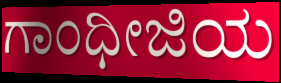
ಗಾಂಧೀಜಿಯ